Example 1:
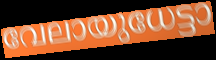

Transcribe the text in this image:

വേലായുധേട്ടാ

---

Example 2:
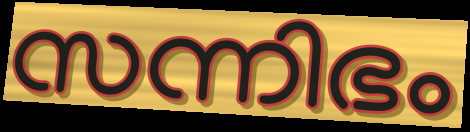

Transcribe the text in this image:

സന്നിഭം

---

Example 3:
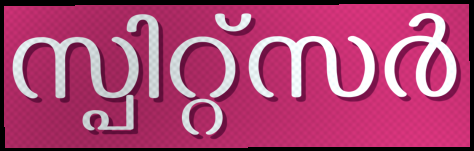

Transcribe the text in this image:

സ്പിറ്റ്സർ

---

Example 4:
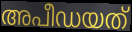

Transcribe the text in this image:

അപീഡയത്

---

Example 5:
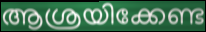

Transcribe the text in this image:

ആശ്രയിക്കേണ്ട